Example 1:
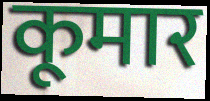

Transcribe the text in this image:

कूमार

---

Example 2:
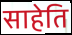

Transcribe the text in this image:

साहेति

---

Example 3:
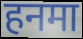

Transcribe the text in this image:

हनमा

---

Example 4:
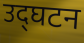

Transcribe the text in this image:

उद्घटन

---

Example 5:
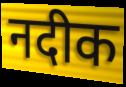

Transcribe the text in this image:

नदीक